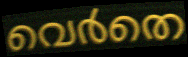
വെർതെ